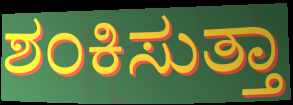
ಶಂಕಿಸುತ್ತಾ